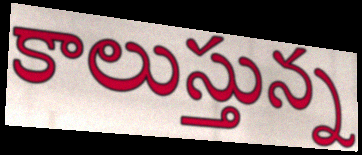
కాలుస్తున్న